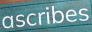
ascribes